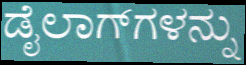
ಡೈಲಾಗ್‌ಗಳನ್ನು